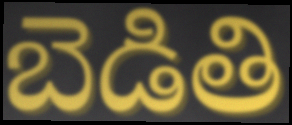
బెడితి